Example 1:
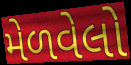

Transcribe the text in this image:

મેળવેલો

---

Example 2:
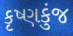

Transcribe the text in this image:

કૃષ્ણકુંજ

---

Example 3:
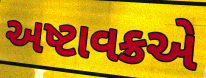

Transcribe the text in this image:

અષ્ટાવક્રએ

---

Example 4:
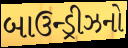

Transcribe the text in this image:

બાઉન્ડ્રીઝનો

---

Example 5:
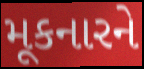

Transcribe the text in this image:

મૂકનારને